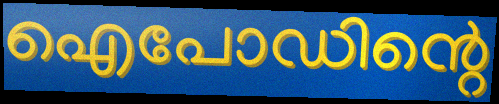
ഐപോഡിന്റെ